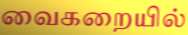
வைகறையில்